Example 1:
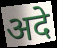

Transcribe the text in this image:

अदे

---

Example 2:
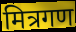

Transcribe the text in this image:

मित्रगण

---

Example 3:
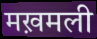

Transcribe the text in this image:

मख़मली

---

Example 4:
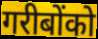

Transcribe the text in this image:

गरीबोंको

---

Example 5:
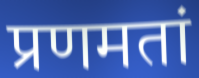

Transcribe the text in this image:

प्रणमतां